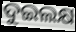
ଦୁଇଲକ୍ଷ